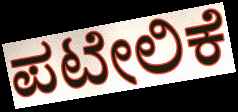
ಪಟೇಲಿಕೆ